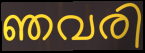
ഞവരി